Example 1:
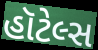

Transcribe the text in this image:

હૉટેલ્સ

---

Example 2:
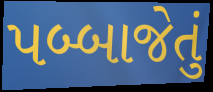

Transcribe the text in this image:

પબ્બાજેતું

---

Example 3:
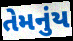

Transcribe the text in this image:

તેમનુંય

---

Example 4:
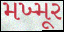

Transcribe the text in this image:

મખ્મૂર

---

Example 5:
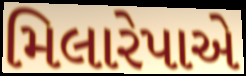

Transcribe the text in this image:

મિલારેપાએ